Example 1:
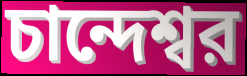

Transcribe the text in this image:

চান্দেশ্বর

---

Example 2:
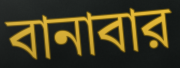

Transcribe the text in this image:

বানাবার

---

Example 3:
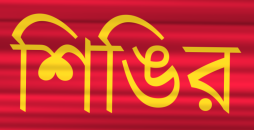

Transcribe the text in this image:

শিঙির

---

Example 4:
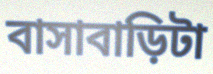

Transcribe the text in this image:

বাসাবাড়িটা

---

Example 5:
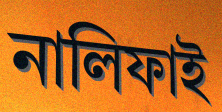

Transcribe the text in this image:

নালিফাই